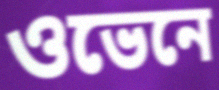
ওভেনে